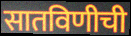
सातविणीची